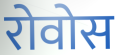
रोवोस